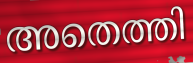
അതെത്തി